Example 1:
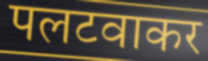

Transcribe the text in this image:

पलटवाकर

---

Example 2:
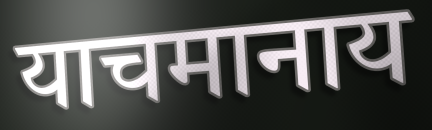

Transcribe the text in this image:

याचमानाय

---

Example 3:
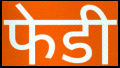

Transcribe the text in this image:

फेडी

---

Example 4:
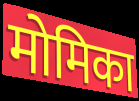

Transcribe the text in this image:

मोमिका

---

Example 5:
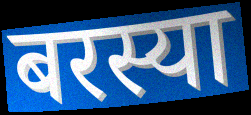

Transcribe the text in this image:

बरस्या